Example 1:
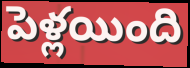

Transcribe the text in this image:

పెళ్లయింది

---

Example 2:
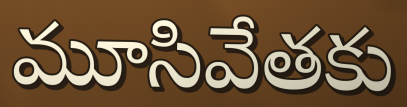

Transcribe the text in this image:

మూసివేతకు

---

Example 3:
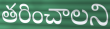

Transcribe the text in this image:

తరించాలని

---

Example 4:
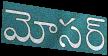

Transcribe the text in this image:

మోసర్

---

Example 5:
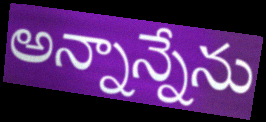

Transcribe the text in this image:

అన్నాన్నేను